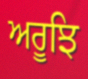
ਅਰੂਝਿ